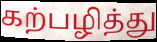
கற்பழித்து